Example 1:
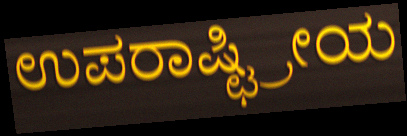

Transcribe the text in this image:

ಉಪರಾಷ್ಟ್ರೀಯ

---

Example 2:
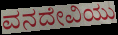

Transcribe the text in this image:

ವನದೇವಿಯು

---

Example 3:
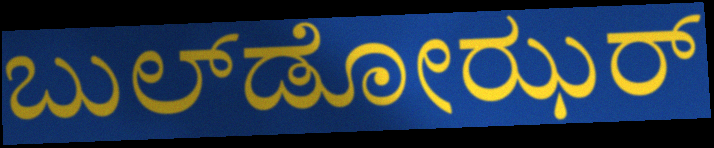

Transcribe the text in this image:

ಬುಲ್‌ಡೋಝರ್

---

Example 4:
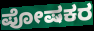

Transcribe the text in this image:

ಪೋಷಕರ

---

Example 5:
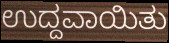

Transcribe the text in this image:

ಉದ್ದವಾಯಿತು